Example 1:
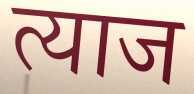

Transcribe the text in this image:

त्याज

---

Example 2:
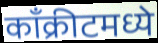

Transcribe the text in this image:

काँक्रीटमध्ये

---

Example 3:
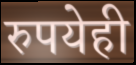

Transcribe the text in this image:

रुपयेही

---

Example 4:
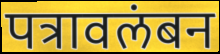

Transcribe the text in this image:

पत्रावलंबन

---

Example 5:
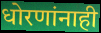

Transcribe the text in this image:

धोरणांनाही